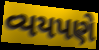
વ્યયપણે